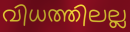
വിധത്തിലല്ല